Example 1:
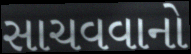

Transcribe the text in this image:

સાચવવાનો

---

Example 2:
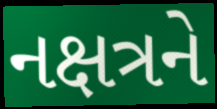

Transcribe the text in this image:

નક્ષત્રને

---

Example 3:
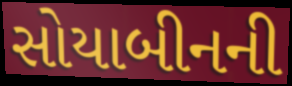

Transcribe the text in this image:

સોયાબીનની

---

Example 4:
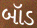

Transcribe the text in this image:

બૉડ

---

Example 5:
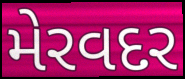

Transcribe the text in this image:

મેરવદર